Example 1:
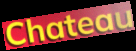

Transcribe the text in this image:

Chateau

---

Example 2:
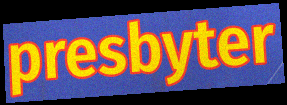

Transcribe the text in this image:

presbyter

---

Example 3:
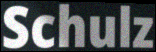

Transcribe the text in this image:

Schulz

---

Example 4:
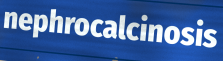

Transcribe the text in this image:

nephrocalcinosis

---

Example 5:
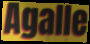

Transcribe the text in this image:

Agalle